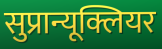
सुप्रान्यूक्लियर